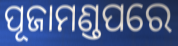
ପୂଜାମଣ୍ଡପରେ